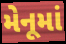
મેનૂમાં